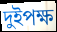
দুইপক্ষ